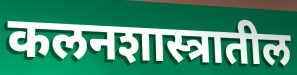
कलनशास्त्रातील